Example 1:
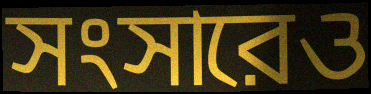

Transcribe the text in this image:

সংসারেও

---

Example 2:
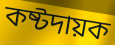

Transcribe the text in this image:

কষ্টদায়ক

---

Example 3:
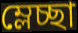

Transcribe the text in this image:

ম্লেচ্ছা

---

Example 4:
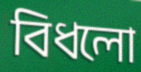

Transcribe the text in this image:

বিধলো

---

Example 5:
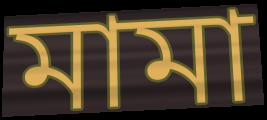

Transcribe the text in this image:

মামা